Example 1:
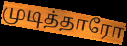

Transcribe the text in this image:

முடித்தாரோ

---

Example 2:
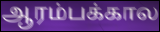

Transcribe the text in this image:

ஆரம்பக்கால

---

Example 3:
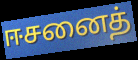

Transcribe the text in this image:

ஈசனைத்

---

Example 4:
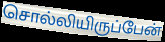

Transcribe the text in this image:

சொல்லியிருப்பேன்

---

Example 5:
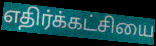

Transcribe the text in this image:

எதிர்க்கட்சியை